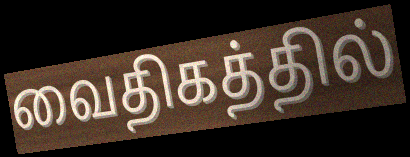
வைதிகத்தில்